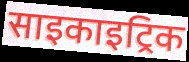
साइकाइट्रिक